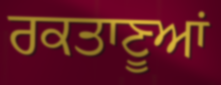
ਰਕਤਾਣੂਆਂ